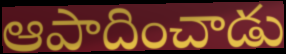
ఆపాదించాడు